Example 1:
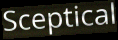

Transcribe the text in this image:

Sceptical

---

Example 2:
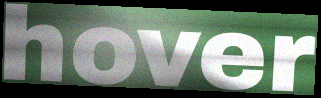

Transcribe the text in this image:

hover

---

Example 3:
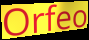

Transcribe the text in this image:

Orfeo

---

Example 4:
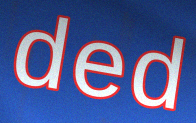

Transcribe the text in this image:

ded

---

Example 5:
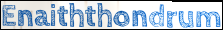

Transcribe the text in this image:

Enaiththondrum